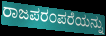
ರಾಜಪರಂಪರೆಯನ್ನು